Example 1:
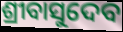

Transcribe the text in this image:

ଶ୍ରୀବାସୁଦେବ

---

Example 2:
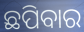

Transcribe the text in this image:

ଛପିବାର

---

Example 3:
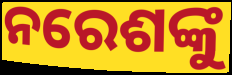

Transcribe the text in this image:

ନରେଶଙ୍କୁ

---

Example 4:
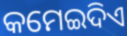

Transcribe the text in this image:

କମେଇଦିଏ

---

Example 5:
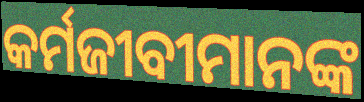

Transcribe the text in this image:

କର୍ମଜୀବୀମାନଙ୍କ